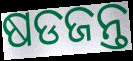
ଷଡଜନ୍ତ